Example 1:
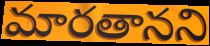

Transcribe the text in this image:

మారతానని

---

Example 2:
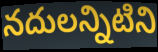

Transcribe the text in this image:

నదులన్నిటిని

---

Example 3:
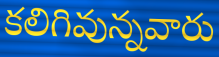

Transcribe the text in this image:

కలిగివున్నవారు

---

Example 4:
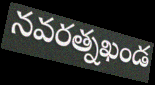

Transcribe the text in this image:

నవరత్నఖండ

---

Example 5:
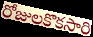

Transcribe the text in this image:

రోజులకొకసారి